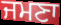
ਜਮਣਾ